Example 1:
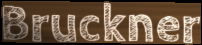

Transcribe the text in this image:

Bruckner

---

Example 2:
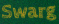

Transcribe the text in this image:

Swarg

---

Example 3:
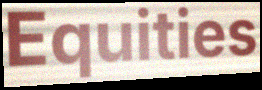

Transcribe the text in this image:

Equities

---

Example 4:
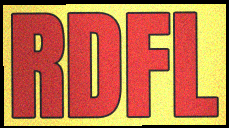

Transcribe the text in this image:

RDFL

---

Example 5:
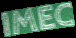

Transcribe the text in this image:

IMEC